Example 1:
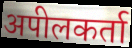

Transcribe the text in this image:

अपीलकर्ता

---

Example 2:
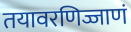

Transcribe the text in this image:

तयावरणिज्जाणं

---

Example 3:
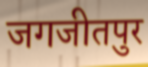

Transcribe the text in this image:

जगजीतपुर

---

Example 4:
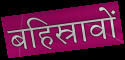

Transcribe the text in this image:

बहिस्रावों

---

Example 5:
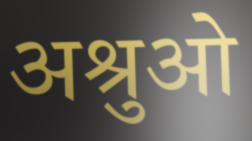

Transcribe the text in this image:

अश्रुओ